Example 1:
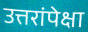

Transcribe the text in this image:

उत्तरांपेक्षा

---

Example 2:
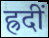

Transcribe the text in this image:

ह्रदीं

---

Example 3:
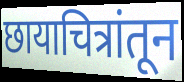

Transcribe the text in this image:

छायाचित्रांतून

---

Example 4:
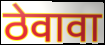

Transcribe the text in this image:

ठेवावा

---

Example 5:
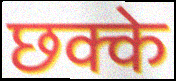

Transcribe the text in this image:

छक्के